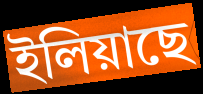
ইলিয়াছে